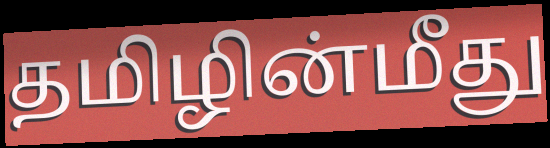
தமிழின்மீது